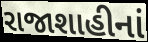
રાજાશાહીનાં